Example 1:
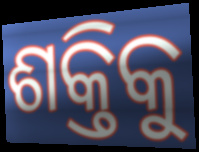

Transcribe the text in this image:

ଶକ୍ତିକୁ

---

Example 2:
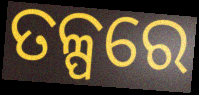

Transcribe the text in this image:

ତଳ୍ପରେ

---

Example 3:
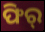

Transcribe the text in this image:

ଫିର୍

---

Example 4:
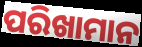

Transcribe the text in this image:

ପରିଖାମାନ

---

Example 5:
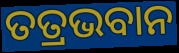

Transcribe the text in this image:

ତତ୍ରଭବାନ